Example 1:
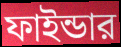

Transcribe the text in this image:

ফাইন্ডার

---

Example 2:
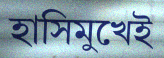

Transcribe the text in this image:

হাসিমুখেই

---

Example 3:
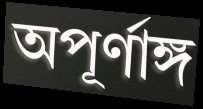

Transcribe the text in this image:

অপূর্ণাঙ্গ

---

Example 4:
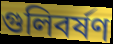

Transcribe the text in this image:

গুলিবর্ষণ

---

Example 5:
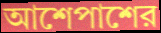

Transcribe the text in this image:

আশেপাশের